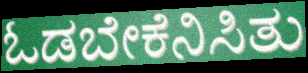
ಓಡಬೇಕೆನಿಸಿತು